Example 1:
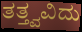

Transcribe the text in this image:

ತತ್ತ್ವವಿದು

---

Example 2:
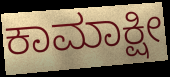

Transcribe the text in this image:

ಕಾಮಾಕ್ಷೀ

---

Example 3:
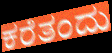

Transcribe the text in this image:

ಕರೆತಂದು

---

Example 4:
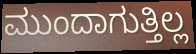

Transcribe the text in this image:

ಮುಂದಾಗುತ್ತಿಲ್ಲ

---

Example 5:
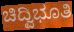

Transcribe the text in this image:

ಚಿದ್ವಿಭೂತಿ